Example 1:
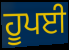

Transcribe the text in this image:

ਹੂਪਈ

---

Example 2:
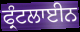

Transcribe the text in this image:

ਫ੍ਰੰਟਲਾਈਨ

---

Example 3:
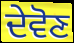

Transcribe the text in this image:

ਦੇਵੋਣ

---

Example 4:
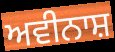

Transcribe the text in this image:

ਅਵੀਨਾਸ਼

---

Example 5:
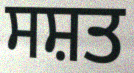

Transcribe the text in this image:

ਸਸ਼ਤ